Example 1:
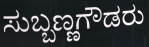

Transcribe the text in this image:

ಸುಬ್ಬಣ್ಣಗೌಡರು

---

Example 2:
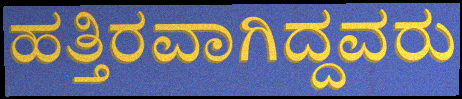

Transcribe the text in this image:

ಹತ್ತಿರವಾಗಿದ್ದವರು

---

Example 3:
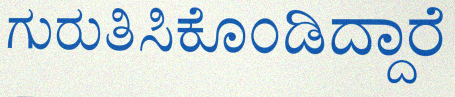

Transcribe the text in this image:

ಗುರುತಿಸಿಕೊಂಡಿದ್ದಾರೆ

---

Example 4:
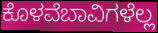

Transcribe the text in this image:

ಕೊಳವೆಬಾವಿಗಳೆಲ್ಲ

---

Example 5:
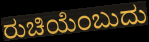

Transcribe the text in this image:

ರುಚಿಯೆಂಬುದು